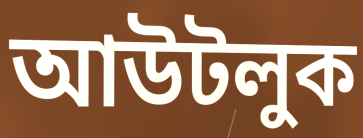
আউটলুক